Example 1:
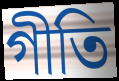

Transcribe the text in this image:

গীতি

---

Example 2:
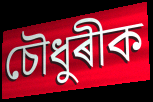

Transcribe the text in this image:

চৌধুৰীক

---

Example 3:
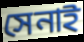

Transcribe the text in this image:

সেনাই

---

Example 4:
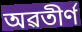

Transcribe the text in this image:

অৱতীৰ্ণ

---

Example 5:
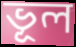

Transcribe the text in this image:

ভূল